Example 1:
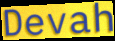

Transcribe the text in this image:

Devah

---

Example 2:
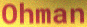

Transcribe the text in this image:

Ohman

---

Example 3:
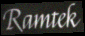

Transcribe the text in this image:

Ramtek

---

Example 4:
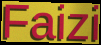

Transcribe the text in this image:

Faizi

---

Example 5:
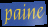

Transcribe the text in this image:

paine